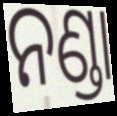
ନଣ୍ଡା